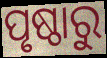
ପୃଷ୍ଠାରୁ